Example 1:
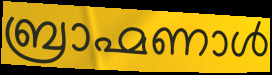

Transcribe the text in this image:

ബ്രാഹ്മണാൾ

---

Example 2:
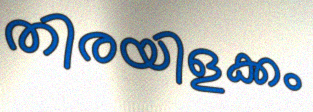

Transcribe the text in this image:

തിരയിളക്കം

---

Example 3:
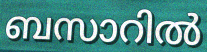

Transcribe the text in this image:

ബസാറിൽ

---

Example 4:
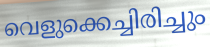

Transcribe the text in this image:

വെളുക്കെച്ചിരിച്ചും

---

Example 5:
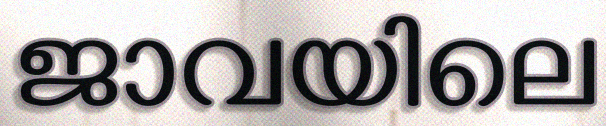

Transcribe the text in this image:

ജാവയിലെ